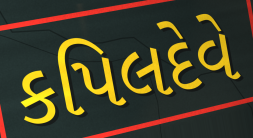
કપિલદેવે